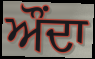
ਔਂਦਾ